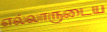
எல்லாருடைய